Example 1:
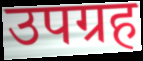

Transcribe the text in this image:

उपग्रह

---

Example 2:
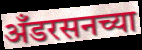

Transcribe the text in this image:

अँडरसनच्या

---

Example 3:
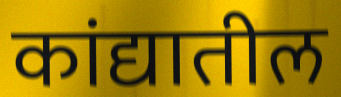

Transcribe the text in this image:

कांद्यातील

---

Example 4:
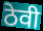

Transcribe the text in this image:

ठेवी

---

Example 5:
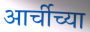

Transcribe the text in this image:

आर्चीच्या